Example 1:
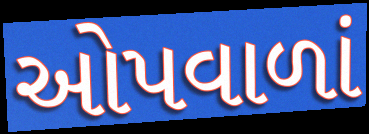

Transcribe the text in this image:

ઓપવાળાં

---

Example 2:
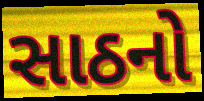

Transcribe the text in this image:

સાઠનો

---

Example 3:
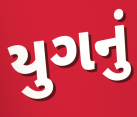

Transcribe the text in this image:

યુગનું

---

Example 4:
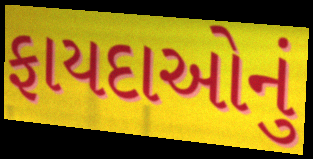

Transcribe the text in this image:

ફાયદાઓનું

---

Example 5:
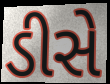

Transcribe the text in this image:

ડીસે